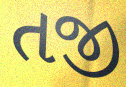
તજી